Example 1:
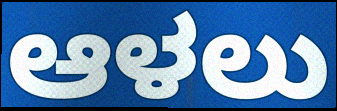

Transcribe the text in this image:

ಆಳಲು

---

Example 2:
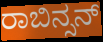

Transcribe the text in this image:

ರಾಬಿನ್ಸನ್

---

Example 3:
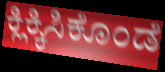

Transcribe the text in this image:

ಕ್ಲಿಕ್ಕಿಸಿಕೊಂಡೆ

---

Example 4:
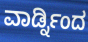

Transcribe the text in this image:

ವಾರ್ಡ್ನಿಂದ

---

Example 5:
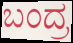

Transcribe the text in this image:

ಬಂದ್ರ